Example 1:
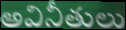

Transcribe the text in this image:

అవినీతులు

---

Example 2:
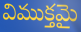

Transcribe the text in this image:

విముక్తమై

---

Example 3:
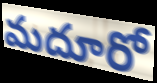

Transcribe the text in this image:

మదూరో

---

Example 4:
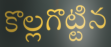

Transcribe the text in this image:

కొల్లగొట్టిన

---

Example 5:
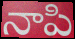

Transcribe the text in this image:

నాపి